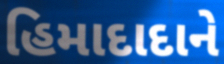
હિમાદાદાને